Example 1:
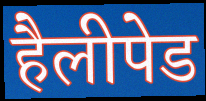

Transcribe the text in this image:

हैलीपेड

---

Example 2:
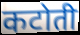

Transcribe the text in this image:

कटोती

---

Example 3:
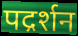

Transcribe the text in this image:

पद्रर्शन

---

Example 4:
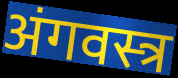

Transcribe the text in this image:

अंगवस्त्र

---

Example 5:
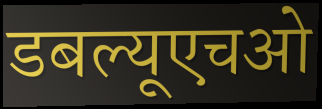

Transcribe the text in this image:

डबल्यूएचओ